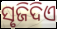
ସୃଜିଦିଏ